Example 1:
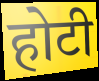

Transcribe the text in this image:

होटी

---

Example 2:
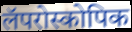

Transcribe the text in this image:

लॅपरोस्कोपिक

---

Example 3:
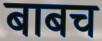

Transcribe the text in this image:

बाबच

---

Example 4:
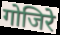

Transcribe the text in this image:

गोजिरे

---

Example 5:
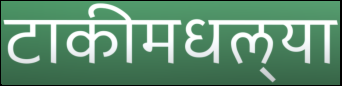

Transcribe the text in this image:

टाकीमधल्या